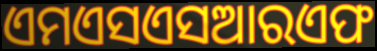
ଏମଏସଏସଆରଏଫ